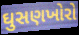
ઘુસણખોરો